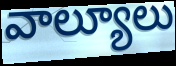
వాల్యూలు